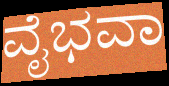
ವೈಭವಾ